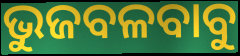
ଭୁଜବଳବାବୁ